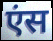
एंस